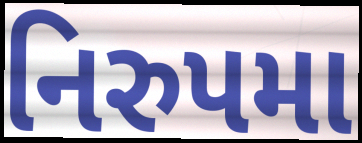
નિરુપમા